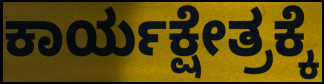
ಕಾರ್ಯಕ್ಷೇತ್ರಕ್ಕೆ